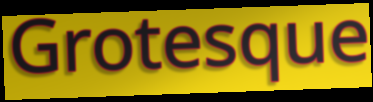
Grotesque